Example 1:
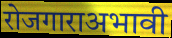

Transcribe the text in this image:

रोजगाराअभावी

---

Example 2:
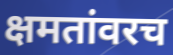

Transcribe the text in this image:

क्षमतांवरच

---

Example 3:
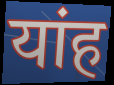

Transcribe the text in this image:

यांह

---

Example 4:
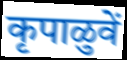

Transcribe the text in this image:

कृपाळुवें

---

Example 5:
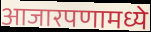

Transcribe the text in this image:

आजारपणामध्ये